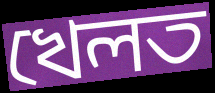
খেলত